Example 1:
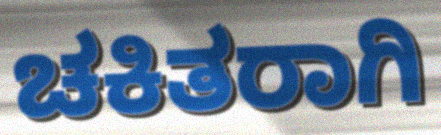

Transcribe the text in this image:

ಚಕಿತರಾಗಿ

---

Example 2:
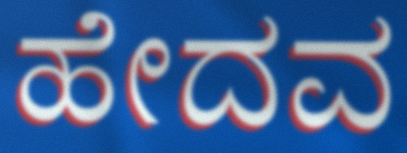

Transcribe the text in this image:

ಹೇದವ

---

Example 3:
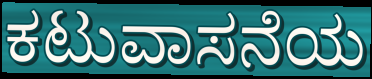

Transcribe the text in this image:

ಕಟುವಾಸನೆಯ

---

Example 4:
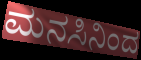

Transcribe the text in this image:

ಮನಸಿನಿಂದ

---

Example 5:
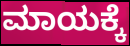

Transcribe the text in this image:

ಮಾಯಕ್ಕೆ